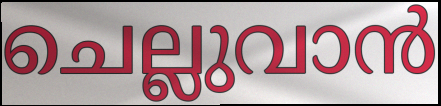
ചെല്ലുവാൻ